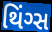
થિંગ્સ